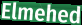
Elmehed